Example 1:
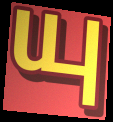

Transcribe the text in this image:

யு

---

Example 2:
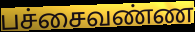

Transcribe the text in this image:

பச்சைவண்ண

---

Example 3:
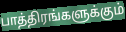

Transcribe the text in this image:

பாத்திரங்களுக்கும்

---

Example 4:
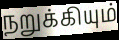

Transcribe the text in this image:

நறுக்கியும்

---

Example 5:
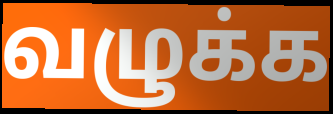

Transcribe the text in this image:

வழுக்க